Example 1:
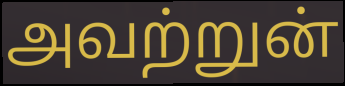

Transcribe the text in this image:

அவற்றுன்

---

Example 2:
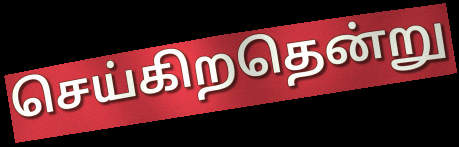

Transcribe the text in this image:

செய்கிறதென்று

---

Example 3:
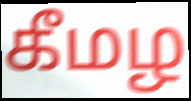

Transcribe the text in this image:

கீமழ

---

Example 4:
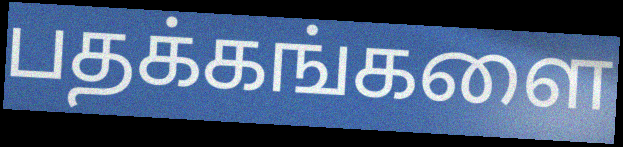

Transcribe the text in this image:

பதக்கங்களை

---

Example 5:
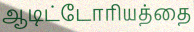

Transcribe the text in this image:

ஆடிட்டோரியத்தை